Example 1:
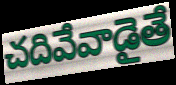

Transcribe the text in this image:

చదివేవాడైతే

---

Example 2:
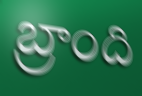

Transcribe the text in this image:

బ్రాంది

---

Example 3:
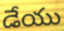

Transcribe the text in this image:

డేయు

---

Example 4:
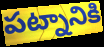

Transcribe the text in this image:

పట్నానికి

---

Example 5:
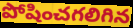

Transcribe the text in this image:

పోషించగలిగిన